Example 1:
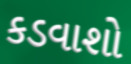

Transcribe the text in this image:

કડવાશો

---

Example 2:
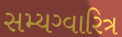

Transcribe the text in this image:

સમ્યગ્વારિત્ર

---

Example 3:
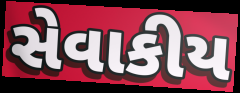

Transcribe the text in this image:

સેવાકીય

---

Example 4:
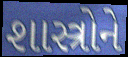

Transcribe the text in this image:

શાસ્ત્રોને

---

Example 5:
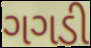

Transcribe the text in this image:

ગગડી